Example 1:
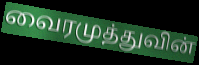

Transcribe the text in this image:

வைரமுத்துவின்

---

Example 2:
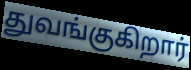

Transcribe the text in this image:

துவங்குகிறார்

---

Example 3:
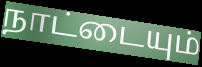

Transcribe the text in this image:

நாட்டையும்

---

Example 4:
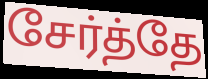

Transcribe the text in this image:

சேர்த்தே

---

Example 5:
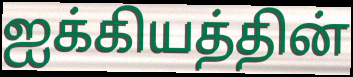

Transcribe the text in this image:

ஐக்கியத்தின்